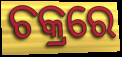
ଚକ୍ରରେ